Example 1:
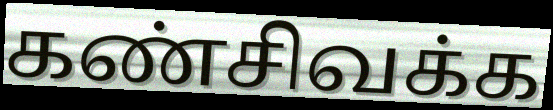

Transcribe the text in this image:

கண்சிவக்க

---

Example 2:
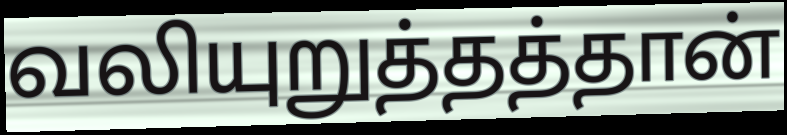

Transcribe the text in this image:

வலியுறுத்தத்தான்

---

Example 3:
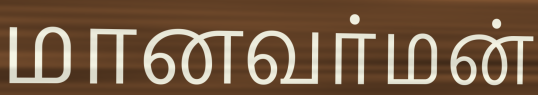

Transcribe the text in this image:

மானவர்மன்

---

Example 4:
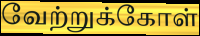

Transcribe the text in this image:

வேற்றுக்கோள்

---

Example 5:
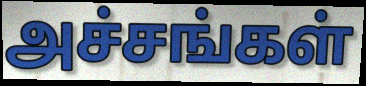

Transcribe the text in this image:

அச்சங்கள்